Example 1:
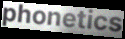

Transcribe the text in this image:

phonetics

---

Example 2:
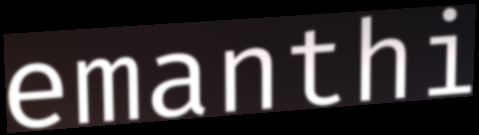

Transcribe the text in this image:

emanthi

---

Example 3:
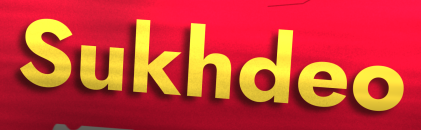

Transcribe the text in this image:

Sukhdeo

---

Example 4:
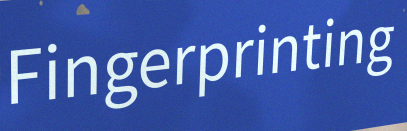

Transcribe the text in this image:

Fingerprinting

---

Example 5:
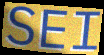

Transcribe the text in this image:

SEI